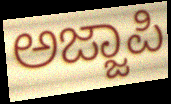
ಅಜ್ಜಾಪಿ